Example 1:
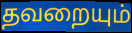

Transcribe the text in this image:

தவறையும்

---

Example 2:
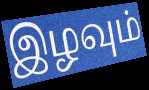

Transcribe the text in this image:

இழவும்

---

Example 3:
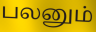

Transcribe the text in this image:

பலனும்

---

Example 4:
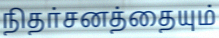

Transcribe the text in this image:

நிதர்சனத்தையும்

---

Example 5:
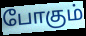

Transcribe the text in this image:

போகும்